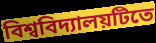
বিশ্ববিদ্যালয়টিতে